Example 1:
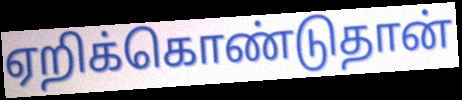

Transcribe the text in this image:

ஏறிக்கொண்டுதான்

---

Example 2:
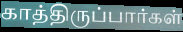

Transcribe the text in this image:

காத்திருப்பார்கள்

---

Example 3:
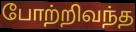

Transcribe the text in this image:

போற்றிவந்த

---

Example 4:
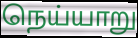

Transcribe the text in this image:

நெய்யாறு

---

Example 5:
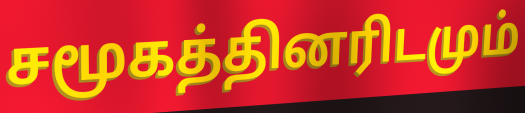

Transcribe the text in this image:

சமூகத்தினரிடமும்